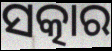
ସତ୍କାର